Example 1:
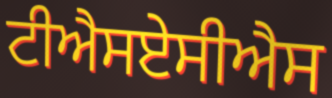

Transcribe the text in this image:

ਟੀਐਸਏਸੀਐਸ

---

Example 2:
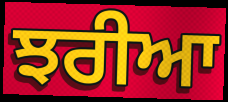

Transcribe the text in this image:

ਝਰੀਆ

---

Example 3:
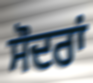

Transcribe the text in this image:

ਸੌਦਰਾਂ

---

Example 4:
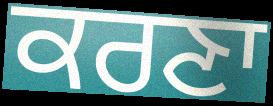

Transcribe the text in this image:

ਕਰਣਾ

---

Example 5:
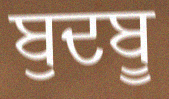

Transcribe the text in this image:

ਬੁਦਬੂ